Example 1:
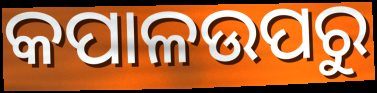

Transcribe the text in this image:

କପାଳଉପରୁ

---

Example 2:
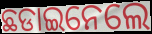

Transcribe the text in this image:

ଛଡାଇନେଲେ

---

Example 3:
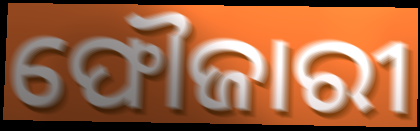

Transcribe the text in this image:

ଫୌଜାରୀ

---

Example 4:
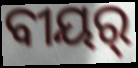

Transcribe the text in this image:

ବୀୟର୍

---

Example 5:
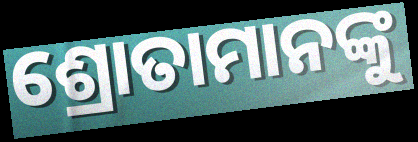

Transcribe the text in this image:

ଶ୍ରୋତାମାନଙ୍କୁ